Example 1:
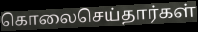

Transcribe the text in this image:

கொலைசெய்தார்கள்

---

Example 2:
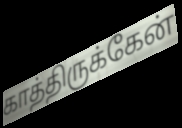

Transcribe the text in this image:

காத்திருக்கேன்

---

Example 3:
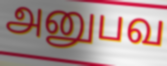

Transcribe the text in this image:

அனுபவ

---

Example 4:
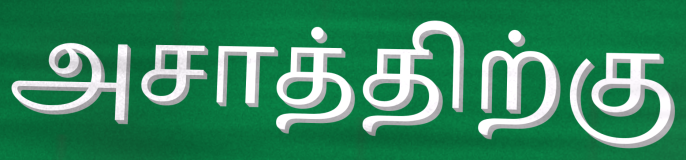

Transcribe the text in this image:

அசாத்திற்கு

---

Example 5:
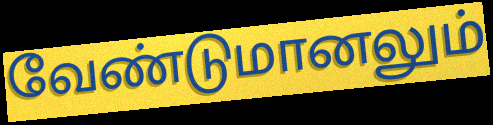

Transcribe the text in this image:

வேண்டுமானலும்